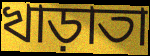
খাড়াতা